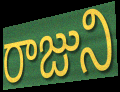
రాజుని